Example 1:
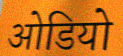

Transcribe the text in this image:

ओडियो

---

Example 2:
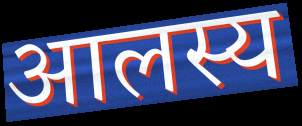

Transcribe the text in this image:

आलस्य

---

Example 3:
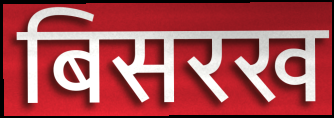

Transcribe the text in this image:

बिसरख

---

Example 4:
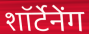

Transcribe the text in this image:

शॉर्टेनेंग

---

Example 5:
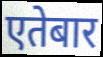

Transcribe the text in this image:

एतेबार